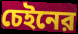
চেইনের